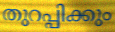
തുറപ്പിക്കും